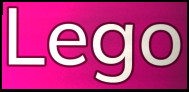
Lego